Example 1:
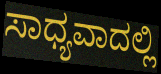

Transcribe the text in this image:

ಸಾಧ್ಯವಾದಲ್ಲಿ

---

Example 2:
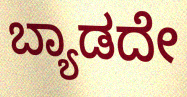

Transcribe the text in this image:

ಬ್ಯಾಡದೇ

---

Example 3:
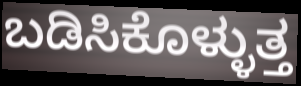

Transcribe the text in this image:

ಬಡಿಸಿಕೊಳ್ಳುತ್ತ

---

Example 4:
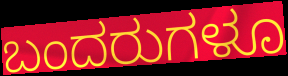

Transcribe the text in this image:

ಬಂದರುಗಳೂ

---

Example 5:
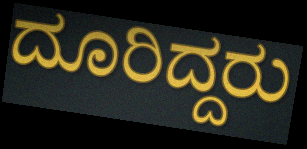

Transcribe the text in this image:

ದೂರಿದ್ದರು